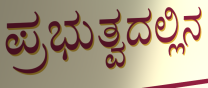
ಪ್ರಭುತ್ವದಲ್ಲಿನ